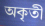
অকৃতী